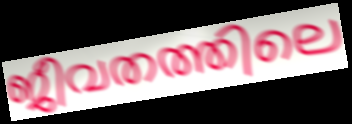
ജീവതത്തിലെ